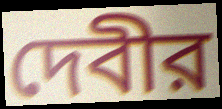
দেবীর